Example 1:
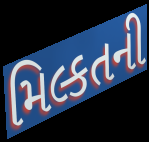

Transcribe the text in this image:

મિલ્કતની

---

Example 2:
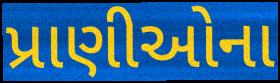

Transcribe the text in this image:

પ્રાણીઓના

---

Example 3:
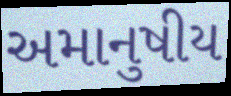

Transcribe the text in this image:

અમાનુષીય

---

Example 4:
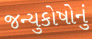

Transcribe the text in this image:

જન્યુકોષોનું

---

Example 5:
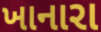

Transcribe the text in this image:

ખાનારા